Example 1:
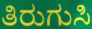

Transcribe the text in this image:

ತಿರುಗುಸಿ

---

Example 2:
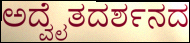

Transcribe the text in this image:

ಅದ್ವೈತದರ್ಶನದ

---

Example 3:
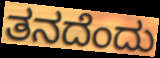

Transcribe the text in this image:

ತನದೆಂದು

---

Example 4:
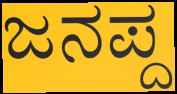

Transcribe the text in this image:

ಜನಪ್ದ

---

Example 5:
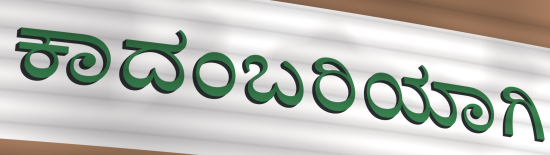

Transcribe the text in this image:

ಕಾದಂಬರಿಯಾಗಿ